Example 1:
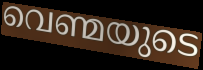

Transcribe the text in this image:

വെണ്മയുടെ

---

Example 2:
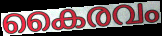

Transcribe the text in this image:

കൈരവം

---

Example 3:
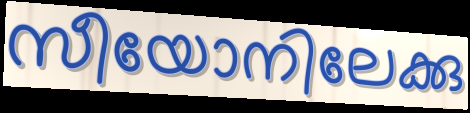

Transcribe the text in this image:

സീയോനിലേക്കു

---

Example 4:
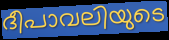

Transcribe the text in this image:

ദീപാവലിയുടെ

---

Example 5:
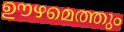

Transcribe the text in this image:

ഊഴമെത്തും